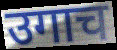
उगाच